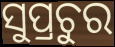
ସୁପ୍ରଚୁର